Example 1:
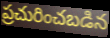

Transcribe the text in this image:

ప్రచురించబడిన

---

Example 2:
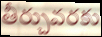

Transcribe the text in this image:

తీర్చువరకు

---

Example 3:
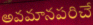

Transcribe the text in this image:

అవమానపరిచే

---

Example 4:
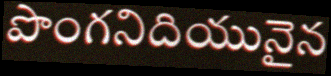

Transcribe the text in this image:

పొంగనిదియునైన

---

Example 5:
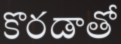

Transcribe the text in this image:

కొరడాతో